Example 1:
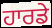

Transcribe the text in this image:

ਹਾਰਡੇ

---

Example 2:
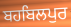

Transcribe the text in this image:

ਬਹਬਿਲਪੁਰ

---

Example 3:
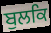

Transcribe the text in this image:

ਬੁਲਕਿ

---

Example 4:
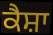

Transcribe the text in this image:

ਕੈਸ਼ਾ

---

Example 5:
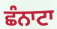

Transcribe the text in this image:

ਛੰਨਾਟਾ